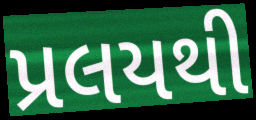
પ્રલયથી